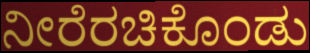
ನೀರೆರಚಿಕೊಂಡು